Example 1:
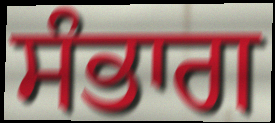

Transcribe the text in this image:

ਸੰਭਾਗ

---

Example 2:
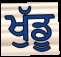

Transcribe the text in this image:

ਖੁੱਡੂ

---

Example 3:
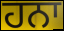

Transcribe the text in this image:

ਹਨਾ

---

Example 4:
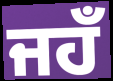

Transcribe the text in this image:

ਜਹਁ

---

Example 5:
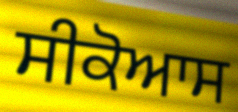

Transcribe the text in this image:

ਸੀਕੋਆਸ